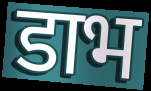
डाभ